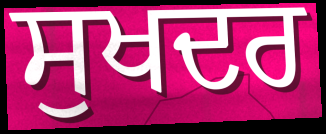
ਸੁਖਦਰ